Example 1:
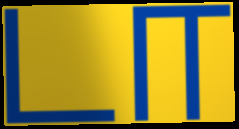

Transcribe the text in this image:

டா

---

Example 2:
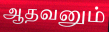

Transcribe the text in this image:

ஆதவனும்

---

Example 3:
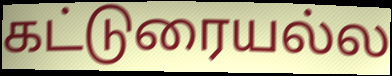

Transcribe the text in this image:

கட்டுரையல்ல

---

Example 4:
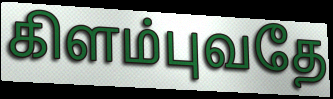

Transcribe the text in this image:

கிளம்புவதே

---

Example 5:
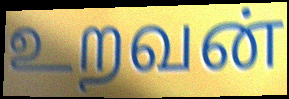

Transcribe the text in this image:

உறவன்